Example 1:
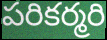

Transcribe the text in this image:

పరికర్మరి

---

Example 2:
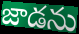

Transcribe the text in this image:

జాడను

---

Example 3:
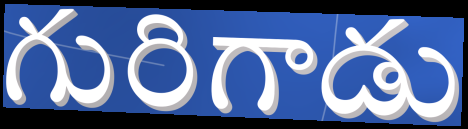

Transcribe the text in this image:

గురిగాడు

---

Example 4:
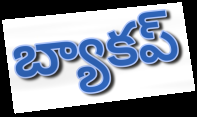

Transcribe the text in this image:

బ్యాకప్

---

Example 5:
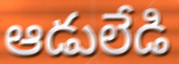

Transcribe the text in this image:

ఆడులేడి